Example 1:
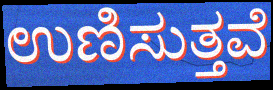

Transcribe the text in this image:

ಉಣಿಸುತ್ತವೆ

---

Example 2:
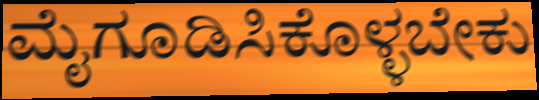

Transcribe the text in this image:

ಮೈಗೂಡಿಸಿಕೊಳ್ಳಬೇಕು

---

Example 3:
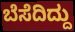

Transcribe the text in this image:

ಬೆಸೆದಿದ್ದು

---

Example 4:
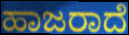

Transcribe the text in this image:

ಹಾಜರಾದೆ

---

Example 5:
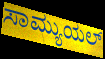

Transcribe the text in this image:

ಸಾಮ್ಯುಯಲ್